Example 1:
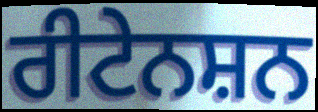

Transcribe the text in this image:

ਰੀਟੇਨਸ਼ਨ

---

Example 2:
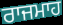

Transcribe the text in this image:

ਰਾਜਮਾਹ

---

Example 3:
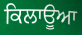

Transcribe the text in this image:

ਕਿਲਾਊਆ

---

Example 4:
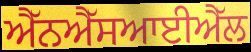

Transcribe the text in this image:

ਐੱਨਐੱਸਆਈਐੱਲ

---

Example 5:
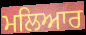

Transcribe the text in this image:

ਮਲਿਆਰ